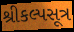
શ્રીકલ્પસૂત્ર